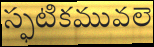
స్ఫటికమువలె